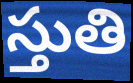
స్తుతి